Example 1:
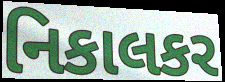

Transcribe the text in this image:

નિકાલકર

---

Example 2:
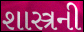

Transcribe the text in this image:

શાસ્ત્રની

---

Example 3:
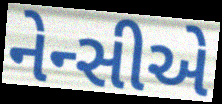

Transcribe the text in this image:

નેન્સીએ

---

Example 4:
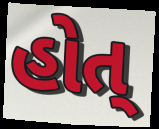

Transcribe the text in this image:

હોત્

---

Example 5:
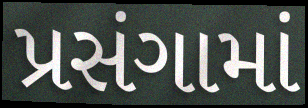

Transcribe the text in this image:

પ્રસંગામાં